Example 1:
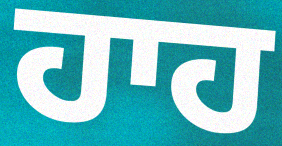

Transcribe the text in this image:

ਹਾਹ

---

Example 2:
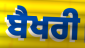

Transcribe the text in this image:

ਬੈਖਰੀ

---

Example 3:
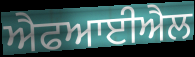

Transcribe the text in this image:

ਐਫਆਈਐਲ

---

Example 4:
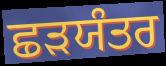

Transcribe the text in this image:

ਛੜਯੰਤਰ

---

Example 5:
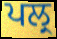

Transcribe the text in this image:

ਪਲ੍ਰ